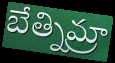
బేత్నిమ్రా